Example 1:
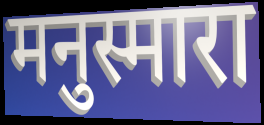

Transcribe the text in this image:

मनुस्मारा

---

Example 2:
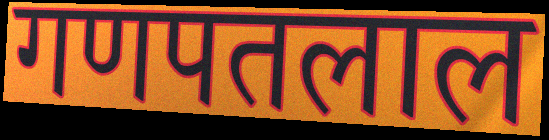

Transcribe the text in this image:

गणपतलाल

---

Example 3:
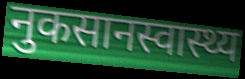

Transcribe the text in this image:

नुकसानस्वास्थ्य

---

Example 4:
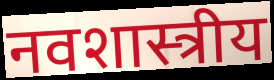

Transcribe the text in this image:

नवशास्त्रीय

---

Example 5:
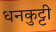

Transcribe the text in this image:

धनकुट्टी